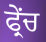
ਫ੍ਰੇਂਚ